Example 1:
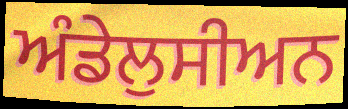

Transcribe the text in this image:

ਅੰਡੇਲੁਸੀਅਨ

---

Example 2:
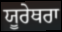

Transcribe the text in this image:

ਯੂਰੇਥਰਾ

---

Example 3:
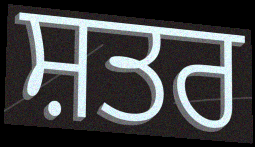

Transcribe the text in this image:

ਸ਼ਤਰ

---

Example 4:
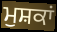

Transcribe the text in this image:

ਮੁਸ਼ਕਾਂ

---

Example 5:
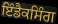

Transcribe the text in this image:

ਇੰਡੈਕਸਿੰਗ